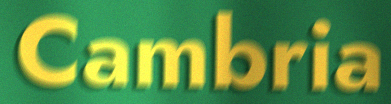
Cambria